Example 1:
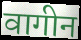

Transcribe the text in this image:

वागीन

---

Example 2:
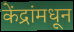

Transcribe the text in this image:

केंद्रांमधून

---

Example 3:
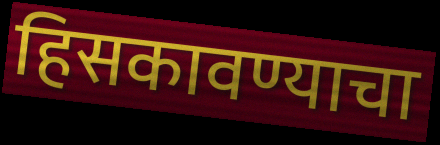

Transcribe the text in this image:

हिसकावण्याचा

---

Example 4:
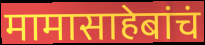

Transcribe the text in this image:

मामासाहेबांचं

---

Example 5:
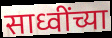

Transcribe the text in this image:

साध्वींच्या